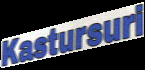
Kastursuri